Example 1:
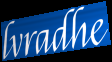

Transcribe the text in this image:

lvradhe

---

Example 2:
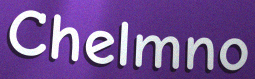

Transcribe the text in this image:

Chelmno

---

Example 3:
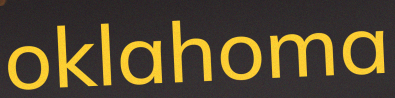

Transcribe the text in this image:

oklahoma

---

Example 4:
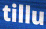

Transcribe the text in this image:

tillu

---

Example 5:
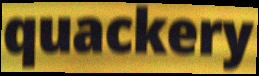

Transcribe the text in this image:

quackery